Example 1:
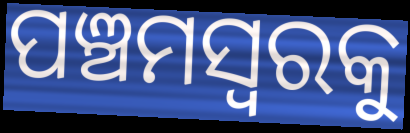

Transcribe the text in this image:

ପଞ୍ଚମସ୍ୱରକୁ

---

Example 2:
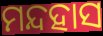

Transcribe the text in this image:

ମନ୍ଦହାସ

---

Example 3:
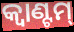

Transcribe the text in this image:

କ୍ୱାଣ୍ଟମ୍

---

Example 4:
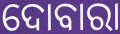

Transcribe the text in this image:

ଦୋବାରା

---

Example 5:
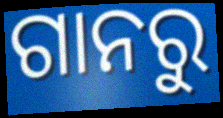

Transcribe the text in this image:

ଗାନରୁ